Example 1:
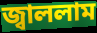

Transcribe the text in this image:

জ্বাললাম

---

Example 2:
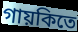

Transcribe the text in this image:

গায়কিতে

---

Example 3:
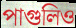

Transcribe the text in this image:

পাগুলিও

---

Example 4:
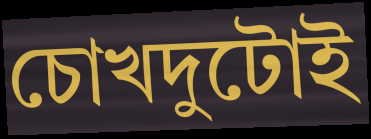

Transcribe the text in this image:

চোখদুটোই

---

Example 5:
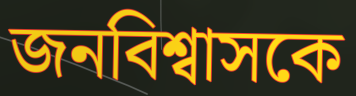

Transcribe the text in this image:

জনবিশ্বাসকে